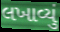
લખાવ્યું